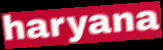
haryana